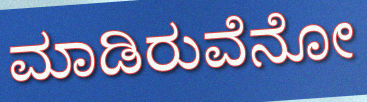
ಮಾಡಿರುವೆನೋ